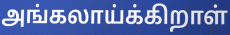
அங்கலாய்க்கிறாள்